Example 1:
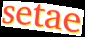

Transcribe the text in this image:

setae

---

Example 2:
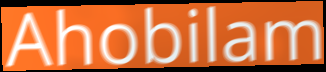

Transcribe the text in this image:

Ahobilam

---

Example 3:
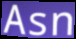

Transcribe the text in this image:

Asn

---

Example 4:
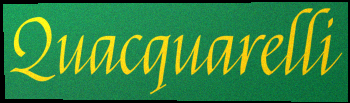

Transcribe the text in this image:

Quacquarelli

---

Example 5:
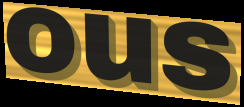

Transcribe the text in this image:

ous